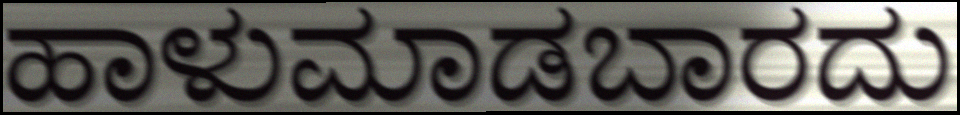
ಹಾಳುಮಾಡಬಾರದು